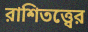
রাশিতত্ত্বের